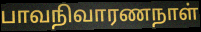
பாவநிவாரணநாள்